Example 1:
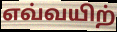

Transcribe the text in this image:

எவ்வயிற்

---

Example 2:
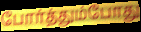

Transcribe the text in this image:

போர்த்தும்போது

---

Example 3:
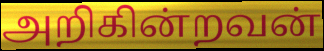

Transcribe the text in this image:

அறிகின்றவன்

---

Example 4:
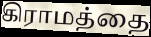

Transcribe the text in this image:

கிராமத்தை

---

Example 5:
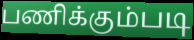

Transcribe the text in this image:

பணிக்கும்படி